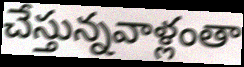
చేస్తున్నవాళ్లంతా